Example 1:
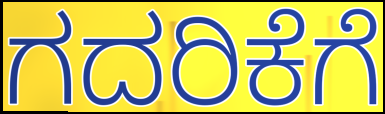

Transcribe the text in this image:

ಗದರಿಕೆಗೆ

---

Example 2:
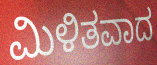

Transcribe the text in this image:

ಮಿಳಿತವಾದ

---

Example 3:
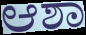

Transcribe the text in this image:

ಆಶಾ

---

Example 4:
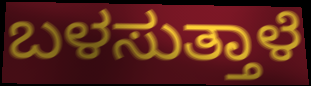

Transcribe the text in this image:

ಬಳಸುತ್ತಾಳೆ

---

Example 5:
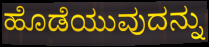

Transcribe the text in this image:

ಹೊಡೆಯುವುದನ್ನು